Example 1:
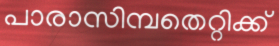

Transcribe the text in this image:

പാരാസിമ്പതെറ്റിക്ക്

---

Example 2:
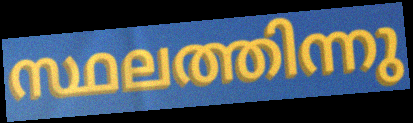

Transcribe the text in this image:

സ്ഥലത്തിന്നു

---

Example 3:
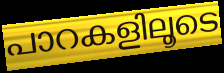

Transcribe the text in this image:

പാറകളിലൂടെ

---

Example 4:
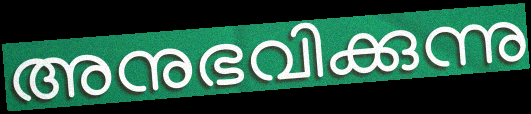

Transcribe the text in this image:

അനുഭവിക്കുന്നു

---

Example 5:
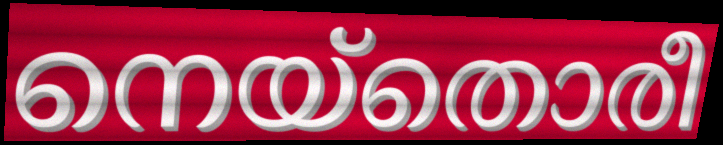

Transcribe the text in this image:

നെയ്തൊരീ